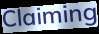
Claiming